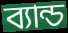
ব্যান্ড